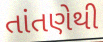
તાંતણેથી